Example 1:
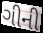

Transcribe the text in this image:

ગીની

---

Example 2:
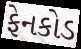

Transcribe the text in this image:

ફેનકોડ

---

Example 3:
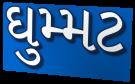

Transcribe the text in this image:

ઘુમ્મટ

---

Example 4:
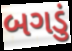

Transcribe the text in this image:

બગડું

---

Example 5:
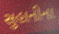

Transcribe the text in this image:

સુહાનીના